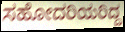
ಸಹೋದರಿಯರಿದ್ದ